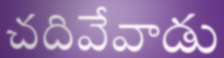
చదివేవాడు